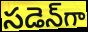
సడెన్‌గా